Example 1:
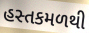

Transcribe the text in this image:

હસ્તકમળથી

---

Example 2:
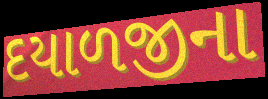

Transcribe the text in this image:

દયાળજીના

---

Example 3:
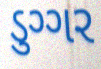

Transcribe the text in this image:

ડુગ્ગર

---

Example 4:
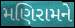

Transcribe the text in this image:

મણિરામને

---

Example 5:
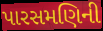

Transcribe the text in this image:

પારસમણિની